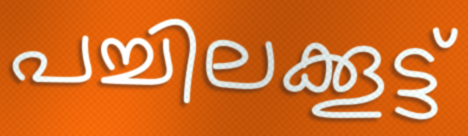
പച്ചിലക്കൂട്ട്